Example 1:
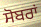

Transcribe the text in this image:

ਸੋਬਰਾਂ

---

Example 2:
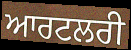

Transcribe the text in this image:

ਆਰਟਲਰੀ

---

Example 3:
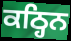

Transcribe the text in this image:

ਕਠ੍ਹਿਨ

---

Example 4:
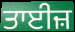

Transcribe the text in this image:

ਤਾਈਜ਼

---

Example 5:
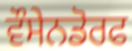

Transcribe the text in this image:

ਵੌਸੇਨਡੋਰਫ